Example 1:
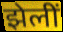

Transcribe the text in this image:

झेलीं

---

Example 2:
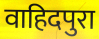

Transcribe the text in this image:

वाहिदपुरा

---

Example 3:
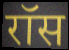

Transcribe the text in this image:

रॉस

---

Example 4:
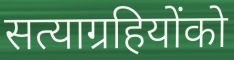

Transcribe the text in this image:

सत्याग्रहियोंको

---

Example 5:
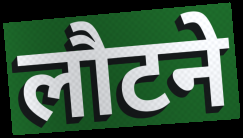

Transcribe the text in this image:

लौटने